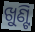
ଖୁଣ୍ଟି